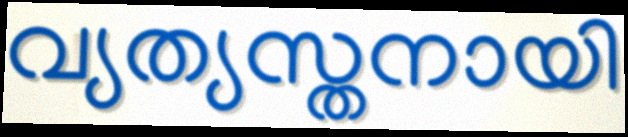
വ്യത്യസ്തനായി